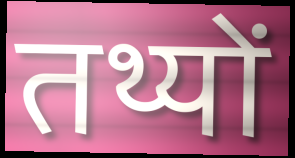
तथ्यों